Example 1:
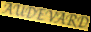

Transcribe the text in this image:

AUDEVARD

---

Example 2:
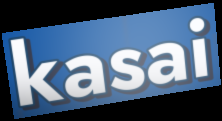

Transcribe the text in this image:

kasai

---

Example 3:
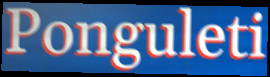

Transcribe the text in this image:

Ponguleti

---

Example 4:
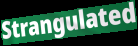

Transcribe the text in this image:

Strangulated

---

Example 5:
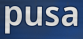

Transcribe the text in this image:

pusa